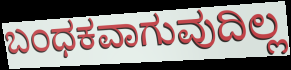
ಬಂಧಕವಾಗುವುದಿಲ್ಲ